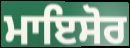
ਮਾਇਸੋਰ